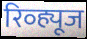
रिव्ह्यूज